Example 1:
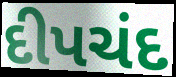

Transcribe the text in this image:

દીપચંદ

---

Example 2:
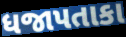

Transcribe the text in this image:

ધજાપતાકા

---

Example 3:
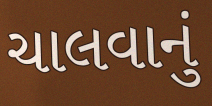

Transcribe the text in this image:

ચાલવાનું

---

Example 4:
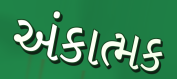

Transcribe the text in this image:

અંકાત્મક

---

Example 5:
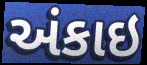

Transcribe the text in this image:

અંકાઇ